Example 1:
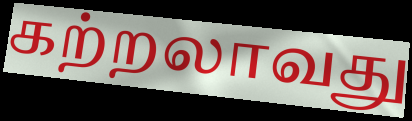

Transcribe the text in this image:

கற்றலாவது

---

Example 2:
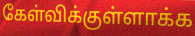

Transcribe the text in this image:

கேள்விக்குள்ளாக்க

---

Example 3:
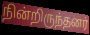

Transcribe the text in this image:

நின்றிருந்தனர்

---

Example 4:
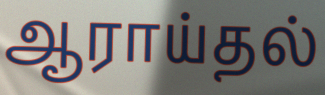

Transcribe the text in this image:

ஆராய்தல்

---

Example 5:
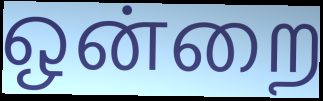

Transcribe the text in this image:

ஒன்றை